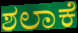
ಶಲಾಕೆ